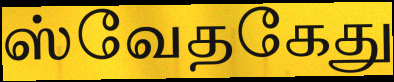
ஸ்வேதகேது